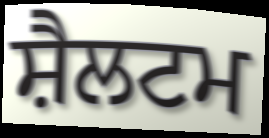
ਸ਼ੈਲਟਮ